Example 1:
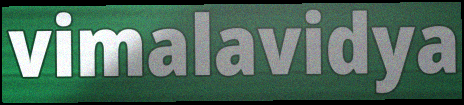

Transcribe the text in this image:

vimalavidya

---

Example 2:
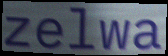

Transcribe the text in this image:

zelwa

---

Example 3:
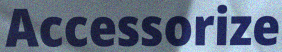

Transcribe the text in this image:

Accessorize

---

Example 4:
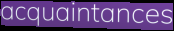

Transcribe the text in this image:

acquaintances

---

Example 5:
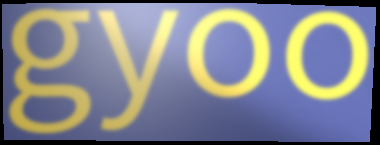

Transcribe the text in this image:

gyoo